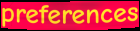
preferences